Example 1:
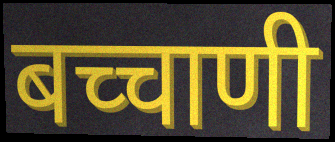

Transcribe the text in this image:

बच्चाणी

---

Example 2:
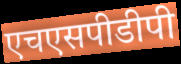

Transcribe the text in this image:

एचएसपीडीपी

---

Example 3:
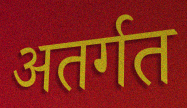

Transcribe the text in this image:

अतर्गत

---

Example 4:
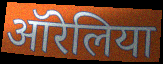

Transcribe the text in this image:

ऑरेलिया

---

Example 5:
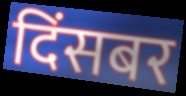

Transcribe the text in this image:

दिंसबर